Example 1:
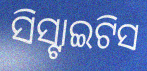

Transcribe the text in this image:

ସିସ୍ଟାଇଟିସ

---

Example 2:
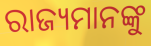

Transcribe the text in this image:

ରାଜ୍ଯମାନଙ୍କୁ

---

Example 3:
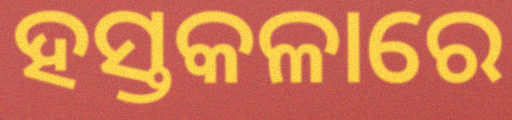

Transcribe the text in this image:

ହସ୍ତକଳାରେ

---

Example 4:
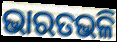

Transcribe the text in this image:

ଭାରତଭଳି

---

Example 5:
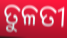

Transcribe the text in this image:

ତୁଳତୀ